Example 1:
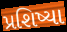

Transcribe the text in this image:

પ્રશિષ્યા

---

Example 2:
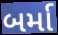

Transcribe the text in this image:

બર્મા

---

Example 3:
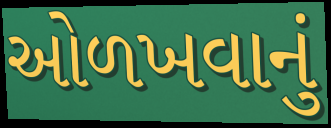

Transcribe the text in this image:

ઓળખવાનું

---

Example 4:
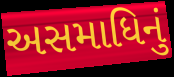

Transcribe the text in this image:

અસમાધિનું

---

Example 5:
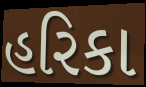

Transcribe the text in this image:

હરિકા